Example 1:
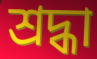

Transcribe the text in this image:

শ্ৰদ্ধা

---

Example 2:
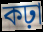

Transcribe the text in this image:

কঢ়া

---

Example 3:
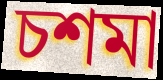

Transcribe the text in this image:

চশমা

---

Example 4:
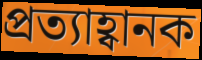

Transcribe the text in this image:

প্ৰত্যাহ্বানক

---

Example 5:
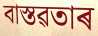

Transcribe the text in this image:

বাস্তৱতাৰ